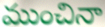
ముంచినా